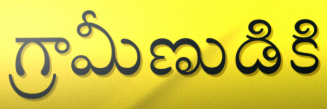
గ్రామీణుడికి